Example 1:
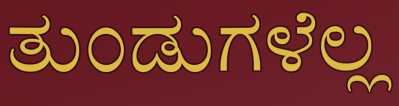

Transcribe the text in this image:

ತುಂಡುಗಳೆಲ್ಲ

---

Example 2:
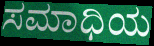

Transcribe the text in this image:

ಸಮಾಧಿಯ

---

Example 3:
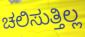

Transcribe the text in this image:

ಚಲಿಸುತ್ತಿಲ್ಲ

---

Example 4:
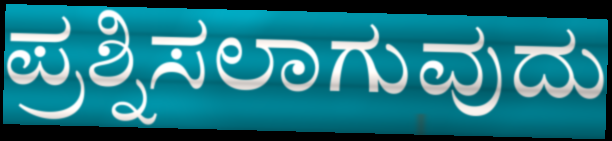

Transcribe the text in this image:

ಪ್ರಶ್ನಿಸಲಾಗುವುದು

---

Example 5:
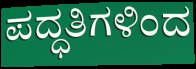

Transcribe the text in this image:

ಪದ್ಧತಿಗಳಿಂದ